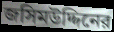
জসিমউদ্দিনের